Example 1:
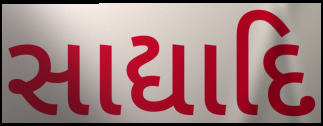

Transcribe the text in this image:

સાદ્યાદિ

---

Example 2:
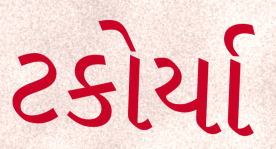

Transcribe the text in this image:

ટકોર્યા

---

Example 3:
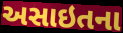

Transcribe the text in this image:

અસાઇતના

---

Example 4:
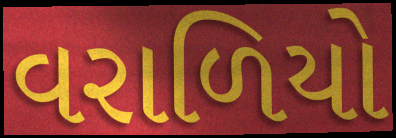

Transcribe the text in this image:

વરાળિયો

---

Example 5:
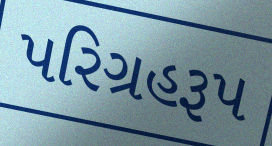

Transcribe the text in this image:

પરિગ્રહરૂપ